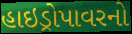
હાઇડ્રોપાવરનો